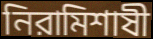
নিরামিশাষী